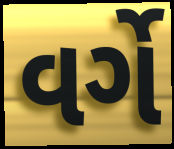
વર્ગે